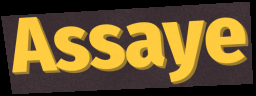
Assaye